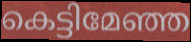
കെട്ടിമേഞ്ഞ